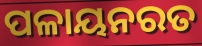
ପଳାୟନରତ